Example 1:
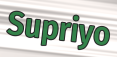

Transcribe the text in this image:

Supriyo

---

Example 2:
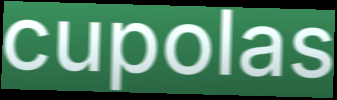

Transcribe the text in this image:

cupolas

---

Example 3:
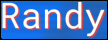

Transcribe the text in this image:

Randy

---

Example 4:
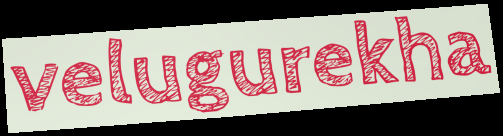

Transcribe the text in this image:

velugurekha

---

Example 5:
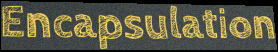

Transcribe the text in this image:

Encapsulation